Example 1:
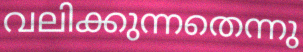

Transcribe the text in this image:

വലിക്കുന്നതെന്നു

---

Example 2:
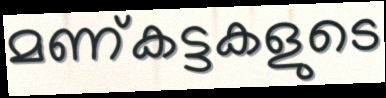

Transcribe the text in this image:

മണ്കട്ടകളുടെ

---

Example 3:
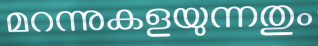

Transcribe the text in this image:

മറന്നുകളയുന്നതും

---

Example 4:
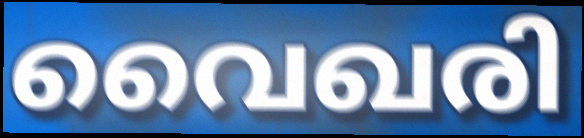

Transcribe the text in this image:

വൈഖരി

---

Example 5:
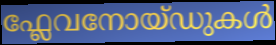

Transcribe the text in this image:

ഫ്ലേവനോയ്ഡുകൾ